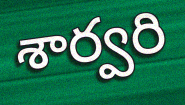
శార్వరి